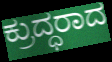
ಕ್ರುದ್ಧರಾದ